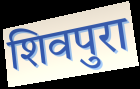
शिवपुरा